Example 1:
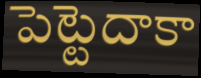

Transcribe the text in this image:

పెట్టెదాకా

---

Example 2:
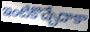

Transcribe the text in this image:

ఇంటికొచ్చేదాకా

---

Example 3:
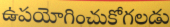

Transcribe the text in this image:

ఉపయోగించుకోగలడు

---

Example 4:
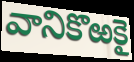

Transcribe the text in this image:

వానికొఱకై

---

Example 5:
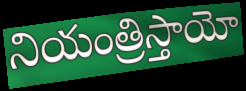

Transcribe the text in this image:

నియంత్రిస్తాయో